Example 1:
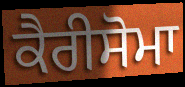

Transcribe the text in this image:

ਕੈਰੀਸੋਮਾ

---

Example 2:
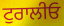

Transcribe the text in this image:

ਟੁਰਾਲੀਓ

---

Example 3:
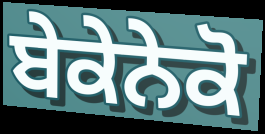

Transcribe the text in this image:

ਬੇਕੇਨੇਕੋ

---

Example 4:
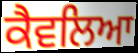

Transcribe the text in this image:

ਕੈਵਲਿਆ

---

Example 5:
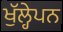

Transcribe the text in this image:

ਖੁੱਲ੍ਹੇਪਨ